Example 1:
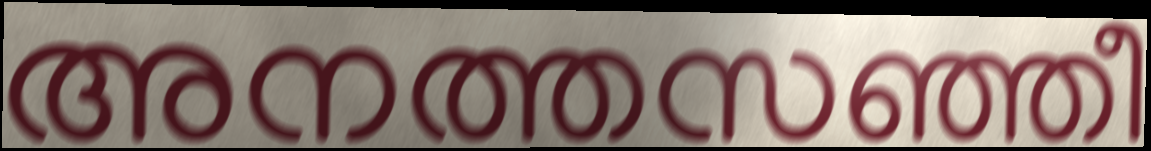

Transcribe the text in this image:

അനത്തസഞ്ഞീ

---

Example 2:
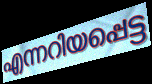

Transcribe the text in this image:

എന്നറിയപ്പെട്ട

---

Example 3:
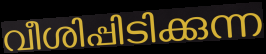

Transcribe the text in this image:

വീശിപ്പിടിക്കുന്ന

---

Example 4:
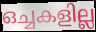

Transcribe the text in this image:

ഒച്ചകളില്ല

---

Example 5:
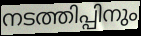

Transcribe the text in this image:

നടത്തിപ്പിനും